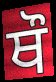
ਥੌ